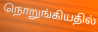
நொறுங்கியதில்